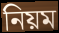
নিয়ম